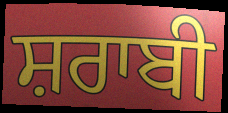
ਸ਼ਰਾਬੀ